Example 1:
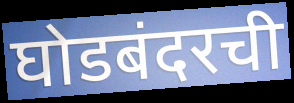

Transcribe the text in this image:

घोडबंदरची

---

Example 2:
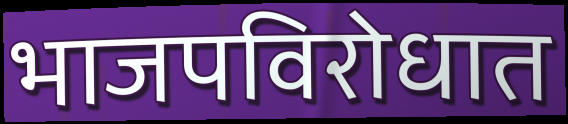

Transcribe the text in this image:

भाजपविरोधात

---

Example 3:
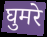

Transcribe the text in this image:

घुमरे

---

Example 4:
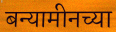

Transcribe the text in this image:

बन्यामीनच्या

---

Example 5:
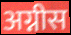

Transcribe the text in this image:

अग्नीस